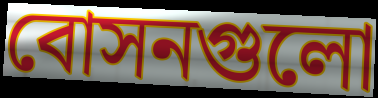
বোসনগুলো